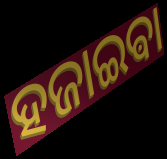
ହଜାଇଵା